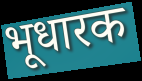
भूधारक